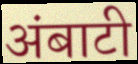
अंबाटी